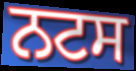
ਨਟਸ